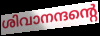
ശിവാനന്ദന്റെ